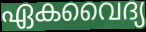
ഏകവൈദ്യ